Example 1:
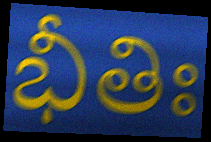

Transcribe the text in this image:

భీతిః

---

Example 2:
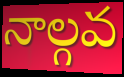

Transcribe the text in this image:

నాల్గవ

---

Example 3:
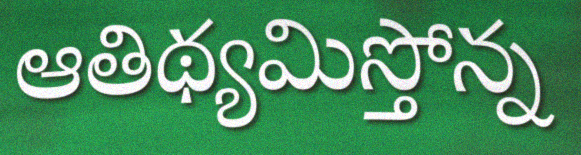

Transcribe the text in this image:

ఆతిథ్యమిస్తోన్న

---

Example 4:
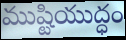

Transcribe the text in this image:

ముష్టియుద్ధం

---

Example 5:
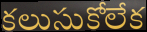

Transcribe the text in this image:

కలుసుకోలేక